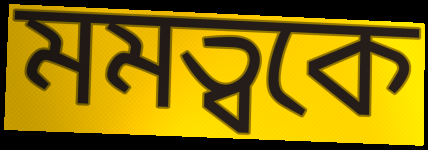
মমত্বকে